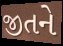
જીતને